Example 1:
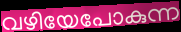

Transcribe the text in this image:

വഴിയേപോകുന്ന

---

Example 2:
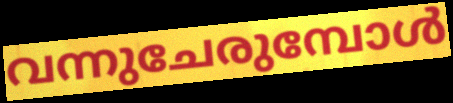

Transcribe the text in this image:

വന്നുചേരുമ്പോൾ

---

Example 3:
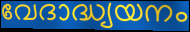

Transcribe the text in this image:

വേദാദ്ധ്യയനം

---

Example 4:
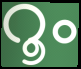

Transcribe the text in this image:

റൂം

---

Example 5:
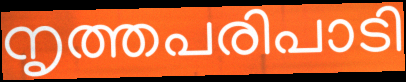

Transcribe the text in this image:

നൃത്തപരിപാടി